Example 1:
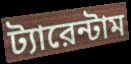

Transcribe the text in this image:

ট্যারেন্টাম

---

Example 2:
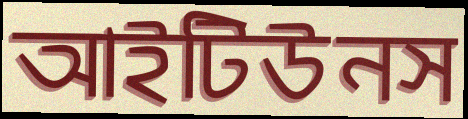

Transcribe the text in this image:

আইটিউনস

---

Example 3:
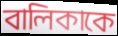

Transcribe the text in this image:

বালিকাকে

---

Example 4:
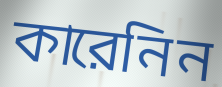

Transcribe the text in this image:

কারেনিন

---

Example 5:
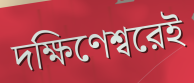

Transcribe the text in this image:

দক্ষিণেশ্বরেই